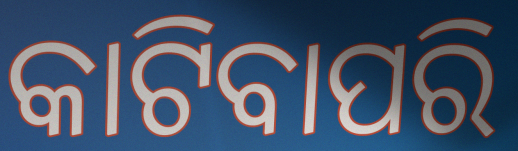
କାଟିବାପରି